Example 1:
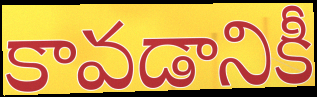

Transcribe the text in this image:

కావడానికీ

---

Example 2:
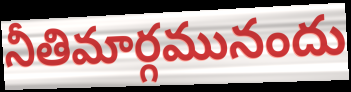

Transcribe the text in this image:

నీతిమార్గమునందు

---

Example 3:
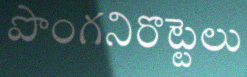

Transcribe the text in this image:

పొంగనిరొట్టెలు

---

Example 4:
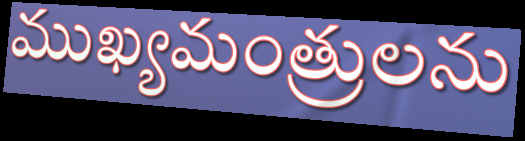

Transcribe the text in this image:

ముఖ్యమంత్రులను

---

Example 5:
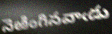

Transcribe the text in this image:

నెఱింగినవాఁడు